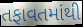
તફાવતમાંથી